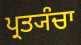
ਪ੍ਰਤ੍ਯੰਚਾ